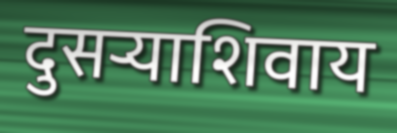
दुसऱ्याशिवाय